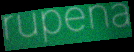
rupena